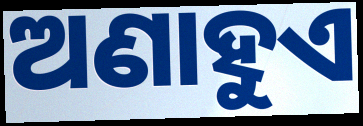
ଅଣାହୁଏ